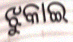
ଝୁକାଇ